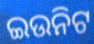
ଇଉନିଟ